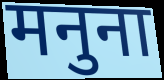
मनुना